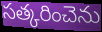
సత్కరించెను